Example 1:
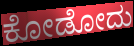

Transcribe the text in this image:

ಕೋಡೋದು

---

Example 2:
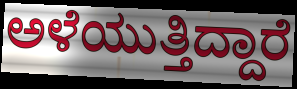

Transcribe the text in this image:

ಅಳೆಯುತ್ತಿದ್ದಾರೆ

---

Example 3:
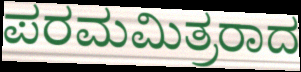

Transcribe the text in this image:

ಪರಮಮಿತ್ರರಾದ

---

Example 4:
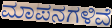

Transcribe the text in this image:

ಮಾಪನಗಳಿವೆ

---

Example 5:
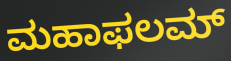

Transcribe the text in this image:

ಮಹಾಫಲಮ್